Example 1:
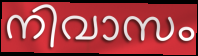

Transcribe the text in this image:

നിവാസം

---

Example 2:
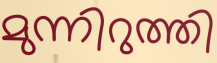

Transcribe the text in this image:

മുന്നിറുത്തി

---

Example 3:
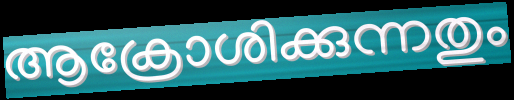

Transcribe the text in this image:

ആക്രോശിക്കുന്നതും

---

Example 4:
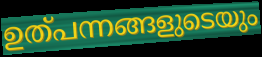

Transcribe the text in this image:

ഉത്പന്നങ്ങളുടെയും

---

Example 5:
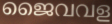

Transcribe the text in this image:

ജൈവവള